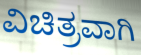
ವಿಚಿತ್ರವಾಗಿ